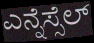
ಎನ್ನೆಸ್ಸೆಲ್